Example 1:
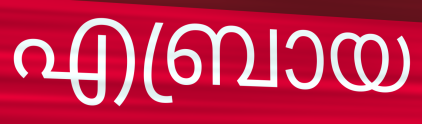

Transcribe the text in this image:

എബ്രായ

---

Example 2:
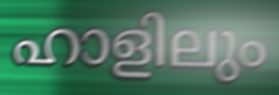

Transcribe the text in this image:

ഹാളിലും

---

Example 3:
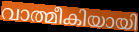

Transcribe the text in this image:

വാത്മീകിയായി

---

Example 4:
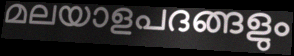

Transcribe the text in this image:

മലയാളപദങ്ങളും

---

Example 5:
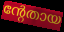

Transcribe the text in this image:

ന്റേതായ